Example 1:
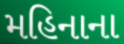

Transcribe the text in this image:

મહિનાના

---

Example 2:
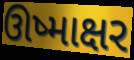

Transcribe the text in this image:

ઊષ્માક્ષર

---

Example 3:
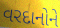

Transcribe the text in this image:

વરદાનોને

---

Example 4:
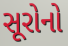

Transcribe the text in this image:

સૂરોનો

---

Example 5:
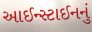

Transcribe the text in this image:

આઈન્સ્ટાઈનનું